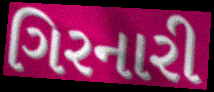
ગિરનારી